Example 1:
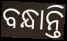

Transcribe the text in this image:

ବନ୍ଧାନ୍ତି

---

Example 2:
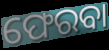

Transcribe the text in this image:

ଫେରବା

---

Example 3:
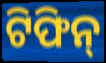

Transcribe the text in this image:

ଟିଫିନ୍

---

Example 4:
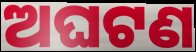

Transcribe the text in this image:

ଅଘଟଣ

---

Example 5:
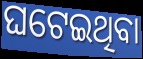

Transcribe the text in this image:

ଘଟେଇଥିବା